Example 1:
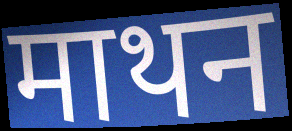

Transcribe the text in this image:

माथन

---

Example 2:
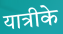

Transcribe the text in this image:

यात्रीके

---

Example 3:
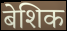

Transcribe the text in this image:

बेशिक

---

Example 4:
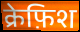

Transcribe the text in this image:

क्रेफ़िश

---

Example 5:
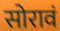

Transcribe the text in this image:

सोरावं